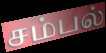
சம்பல்